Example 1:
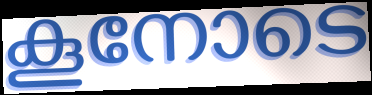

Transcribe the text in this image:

കൂനോടെ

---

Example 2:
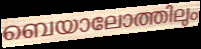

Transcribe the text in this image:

ബെയാലോത്തിലും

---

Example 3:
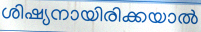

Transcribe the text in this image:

ശിഷ്യനായിരിക്കയാൽ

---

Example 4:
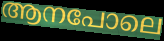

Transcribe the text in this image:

ആനപോലെ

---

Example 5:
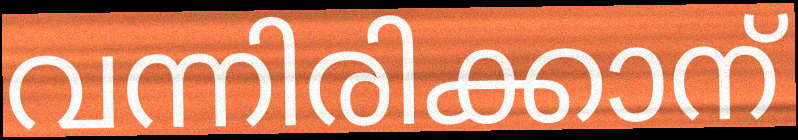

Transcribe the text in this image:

വന്നിരിക്കാന്